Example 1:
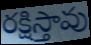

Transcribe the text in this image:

రక్షిస్తావు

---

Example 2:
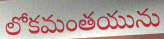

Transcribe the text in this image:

లోకమంతయును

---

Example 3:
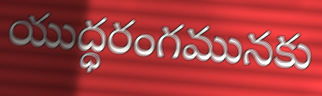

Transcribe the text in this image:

యుద్ధరంగమునకు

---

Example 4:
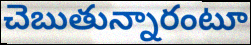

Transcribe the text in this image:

చెబుతున్నారంటూ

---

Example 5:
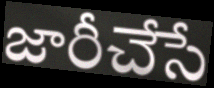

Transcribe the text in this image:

జారీచేసే